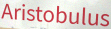
Aristobulus